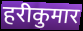
हरीकुमार